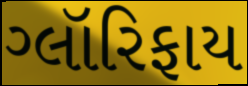
ગ્લૉરિફાય